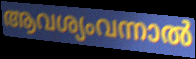
ആവശ്യംവന്നാൽ